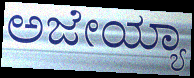
ಅಜೇಯ್ಯಾ